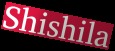
Shishila